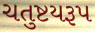
ચતુષ્ટયરૂપ